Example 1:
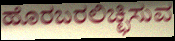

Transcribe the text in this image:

ಹೊರಬರಲಿಚ್ಛಿಸುವ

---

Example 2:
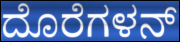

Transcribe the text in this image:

ದೊರೆಗಳನ್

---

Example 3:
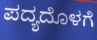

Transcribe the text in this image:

ಪದ್ಯದೊಳಗೆ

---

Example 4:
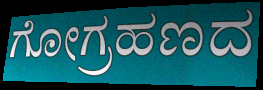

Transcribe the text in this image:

ಗೋಗ್ರಹಣದ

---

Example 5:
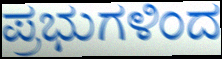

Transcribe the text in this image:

ಪ್ರಭುಗಳಿಂದ